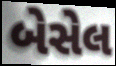
બેસેલ